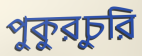
পুকুরচুরি